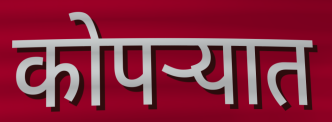
कोपर्‍यात